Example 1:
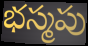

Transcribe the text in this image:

భస్మపు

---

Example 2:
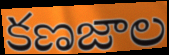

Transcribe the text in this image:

కణజాల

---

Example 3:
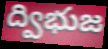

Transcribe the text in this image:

ద్విభుజ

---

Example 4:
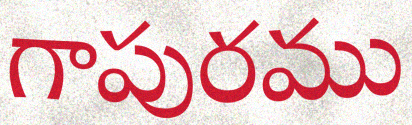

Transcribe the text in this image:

గాపురము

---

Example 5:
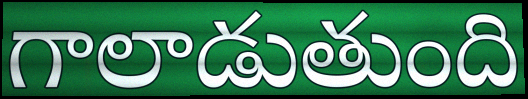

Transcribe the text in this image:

గాలాడుతుంది